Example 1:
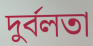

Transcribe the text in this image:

দুর্বলতা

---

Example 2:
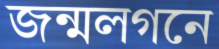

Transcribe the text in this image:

জন্মলগনে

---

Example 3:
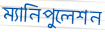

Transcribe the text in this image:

ম্যানিপুলেশন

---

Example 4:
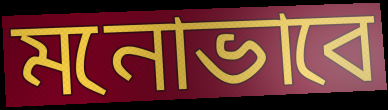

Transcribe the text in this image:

মনোভাবে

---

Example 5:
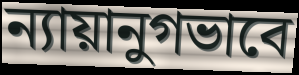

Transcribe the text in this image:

ন্যায়ানুগভাবে